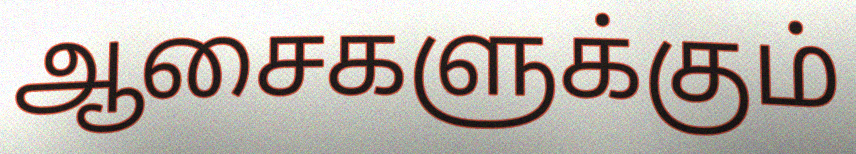
ஆசைகளுக்கும்